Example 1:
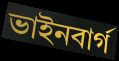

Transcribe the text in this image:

ভাইনবার্গ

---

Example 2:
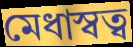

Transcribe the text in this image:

মেধাস্বত্ব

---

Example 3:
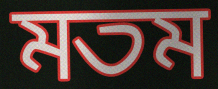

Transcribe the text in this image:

মতম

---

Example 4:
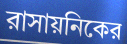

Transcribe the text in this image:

রাসায়নিকের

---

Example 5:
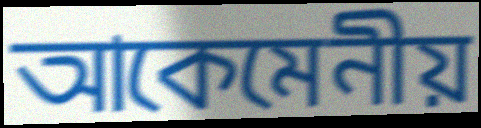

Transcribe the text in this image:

আকেমেনীয়